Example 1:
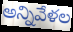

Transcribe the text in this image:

అన్నివేళల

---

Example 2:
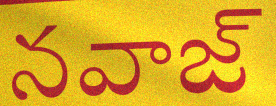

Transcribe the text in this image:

నవాజ్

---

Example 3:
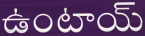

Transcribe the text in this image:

ఉంటాయ్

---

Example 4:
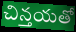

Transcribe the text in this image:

చిన్తయతో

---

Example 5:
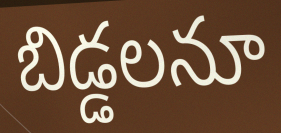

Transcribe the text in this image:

బిడ్డలనూ